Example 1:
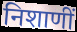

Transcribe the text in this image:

निशाणीं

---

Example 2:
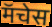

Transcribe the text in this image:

मॅचेस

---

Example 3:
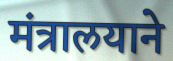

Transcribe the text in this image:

मंत्रालयाने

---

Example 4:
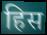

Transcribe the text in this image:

हिस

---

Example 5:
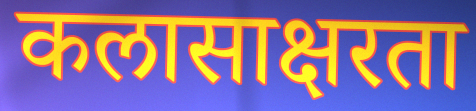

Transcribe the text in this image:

कलासाक्षरता